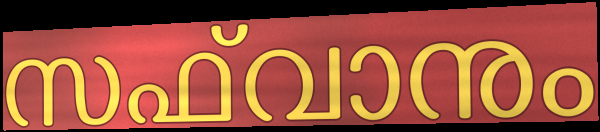
സഫ്‌വാനും